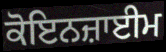
ਕੋਇਨਜ਼ਾਈਮ